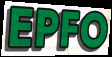
EPFO